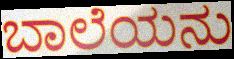
ಬಾಲೆಯನು